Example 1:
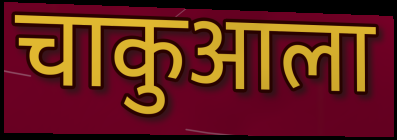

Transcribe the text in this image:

चाकुआला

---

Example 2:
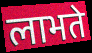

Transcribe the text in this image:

लाभते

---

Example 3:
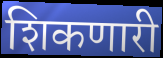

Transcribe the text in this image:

शिकणारी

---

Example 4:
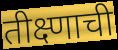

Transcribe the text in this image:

तीक्ष्णाची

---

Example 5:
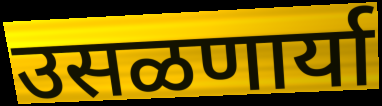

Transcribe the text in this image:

उसळणार्या